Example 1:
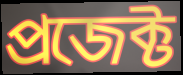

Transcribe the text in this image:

প্ৰজেক্ট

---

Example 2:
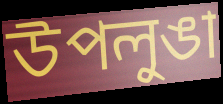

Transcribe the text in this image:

উপলুঙা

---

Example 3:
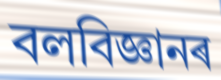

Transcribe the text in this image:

বলবিজ্ঞানৰ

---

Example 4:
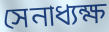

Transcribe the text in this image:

সেনাধ্যক্ষ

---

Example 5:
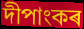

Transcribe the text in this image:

দীপাংকৰ